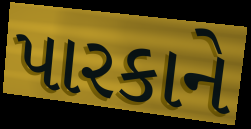
પારકાને